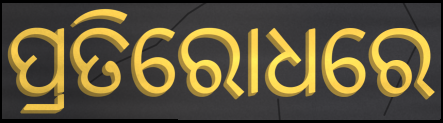
ପ୍ରତିରୋଧରେ